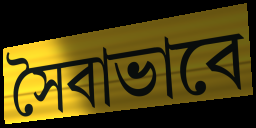
সৈবাভাবে